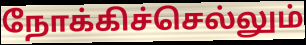
நோக்கிச்செல்லும்